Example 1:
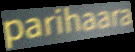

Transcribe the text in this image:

parihaara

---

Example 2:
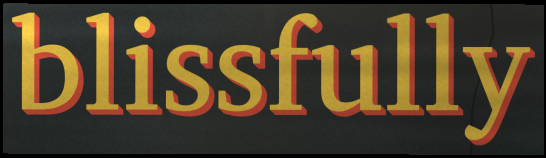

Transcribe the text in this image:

blissfully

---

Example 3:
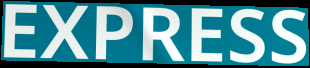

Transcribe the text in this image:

EXPRESS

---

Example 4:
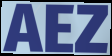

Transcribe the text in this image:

AEZ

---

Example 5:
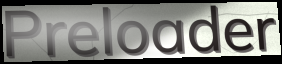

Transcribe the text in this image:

Preloader